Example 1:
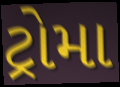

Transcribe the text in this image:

ટ્રોમા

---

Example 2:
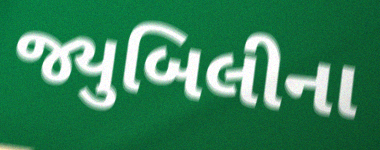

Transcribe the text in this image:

જ્યુબિલીના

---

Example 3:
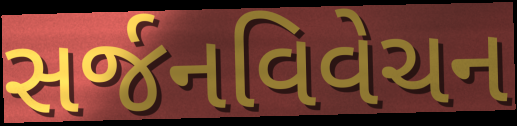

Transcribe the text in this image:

સર્જનવિવેચન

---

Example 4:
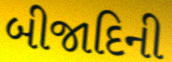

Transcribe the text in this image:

બીજાદિની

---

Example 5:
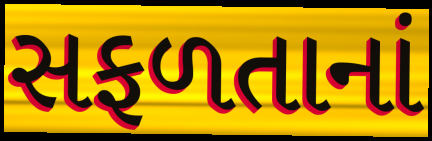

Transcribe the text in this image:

સફળતાનાં